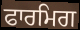
ਫਾਰਮਿਗ